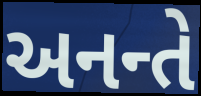
અનન્તે